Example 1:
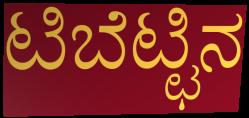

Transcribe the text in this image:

ಟಿಬೆಟ್ಟಿನ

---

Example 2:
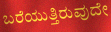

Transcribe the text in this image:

ಬರೆಯುತ್ತಿರುವುದೇ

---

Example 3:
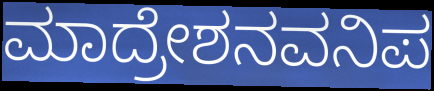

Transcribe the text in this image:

ಮಾದ್ರೇಶನವನಿಪ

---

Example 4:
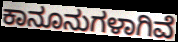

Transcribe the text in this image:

ಕಾನೂನುಗಳಾಗಿವೆ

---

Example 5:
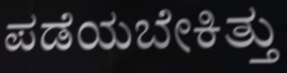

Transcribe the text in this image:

ಪಡೆಯಬೇಕಿತ್ತು